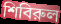
শিবিরুল